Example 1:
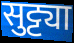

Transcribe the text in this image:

सुट्ट्या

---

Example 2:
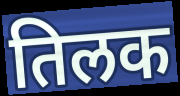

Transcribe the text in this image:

तिलक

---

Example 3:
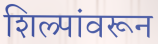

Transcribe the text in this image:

शिल्पांवरून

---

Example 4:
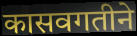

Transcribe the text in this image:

कासवगतीने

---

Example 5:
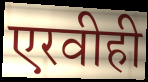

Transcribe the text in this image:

एरवीही